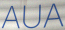
AUA